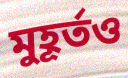
মুহূর্তও